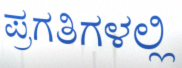
ಪ್ರಗತಿಗಳಲ್ಲಿ